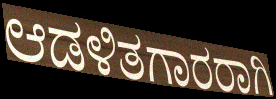
ಆಡಳಿತಗಾರರಾಗಿ